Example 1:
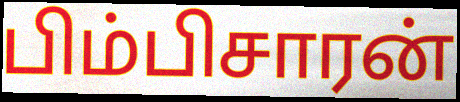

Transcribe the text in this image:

பிம்பிசாரன்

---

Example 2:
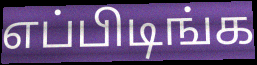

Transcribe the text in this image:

எப்பிடிங்க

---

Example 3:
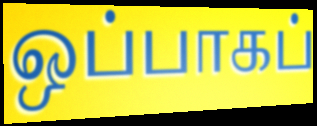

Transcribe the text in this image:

ஒப்பாகப்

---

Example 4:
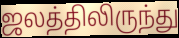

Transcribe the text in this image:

ஜலத்திலிருந்து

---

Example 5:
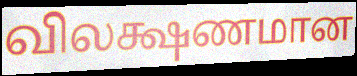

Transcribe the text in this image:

விலக்ஷணமான